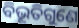
ବିଭୂତିଗୁଣେ